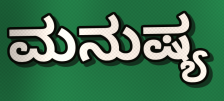
ಮನುಷ್ಯ